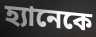
হ্যানেকে